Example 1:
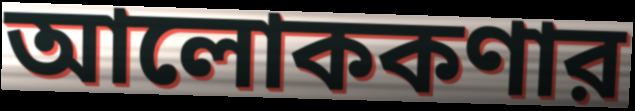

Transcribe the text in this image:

আলোককণার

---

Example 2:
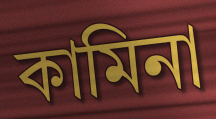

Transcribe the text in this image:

কামিনা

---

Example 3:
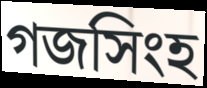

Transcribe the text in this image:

গজসিংহ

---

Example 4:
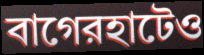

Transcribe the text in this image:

বাগেরহাটেও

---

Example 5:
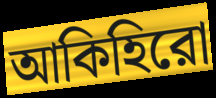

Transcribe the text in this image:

আকিহিরো